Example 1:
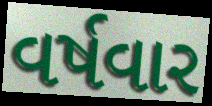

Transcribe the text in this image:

વર્ષવાર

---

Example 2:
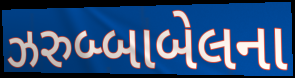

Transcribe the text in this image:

ઝરુબ્બાબેલના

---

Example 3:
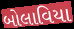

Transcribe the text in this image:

બોલાવિયા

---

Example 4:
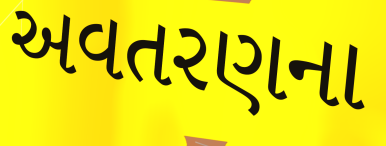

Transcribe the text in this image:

અવતરણના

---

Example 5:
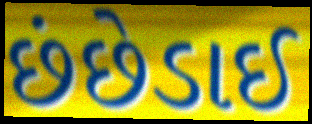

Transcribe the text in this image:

છંછેડાઈ